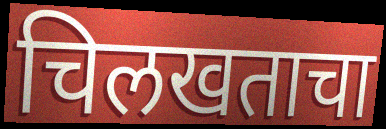
चिलखताचा